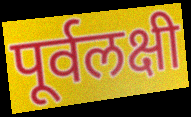
पूर्वलक्षी